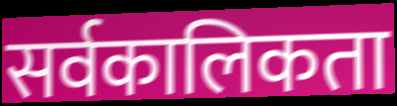
सर्वकालिकता